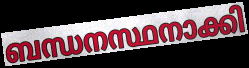
ബന്ധനസ്ഥനാക്കി